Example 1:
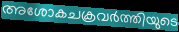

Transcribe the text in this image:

അശോകചക്രവർത്തിയുടെ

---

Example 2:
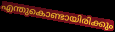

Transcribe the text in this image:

എന്തുകൊണ്ടായിരിക്കും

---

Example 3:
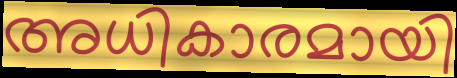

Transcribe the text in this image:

അധികാരമായി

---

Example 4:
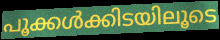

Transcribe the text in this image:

പൂക്കൾക്കിടയിലൂടെ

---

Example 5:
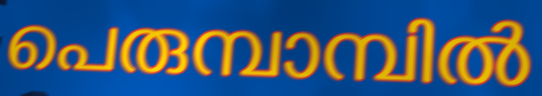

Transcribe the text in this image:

പെരുമ്പാമ്പിൽ